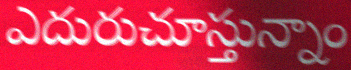
ఎదురుచూస్తున్నాం